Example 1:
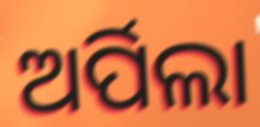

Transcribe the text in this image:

ଅର୍ପିଲା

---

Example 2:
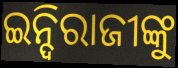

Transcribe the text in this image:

ଇନ୍ଦିରାଜୀଙ୍କୁ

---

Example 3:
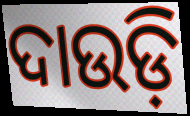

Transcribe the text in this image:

ଦାଉଡ଼ି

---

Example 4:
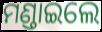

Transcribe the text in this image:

ମଣ୍ଡାଇଲେ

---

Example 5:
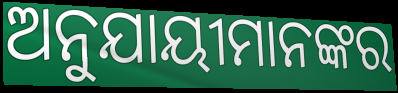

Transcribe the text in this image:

ଅନୁଯାୟୀମାନଙ୍କର